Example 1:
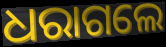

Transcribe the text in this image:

ଧରାଗଲେ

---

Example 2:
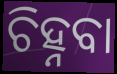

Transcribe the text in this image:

ଚିହ୍ନବା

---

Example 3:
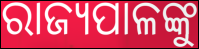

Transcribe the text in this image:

ରାଜ୍ୟପାଳଙ୍କୁ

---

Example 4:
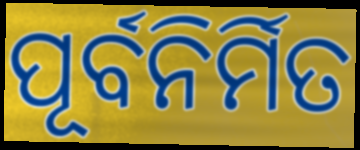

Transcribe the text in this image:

ପୂର୍ବନିର୍ମିତ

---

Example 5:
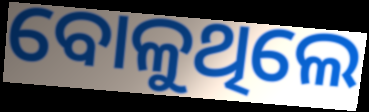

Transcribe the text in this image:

ବୋଳୁଥିଲେ